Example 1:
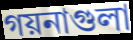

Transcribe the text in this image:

গয়নাগুলা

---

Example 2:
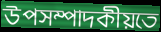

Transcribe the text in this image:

উপসম্পাদকীয়তে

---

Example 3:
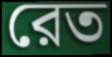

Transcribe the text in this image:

রেত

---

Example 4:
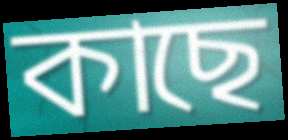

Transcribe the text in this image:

কাছে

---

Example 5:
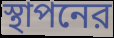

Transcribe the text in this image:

স্থাপনের